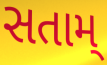
સતામ્